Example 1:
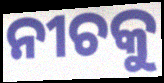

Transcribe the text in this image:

ନୀଚକୁ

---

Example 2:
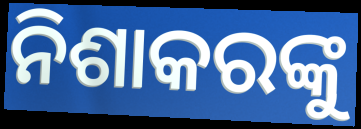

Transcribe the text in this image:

ନିଶାକରଙ୍କୁ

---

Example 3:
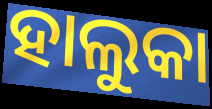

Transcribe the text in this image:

ହାଲୁକା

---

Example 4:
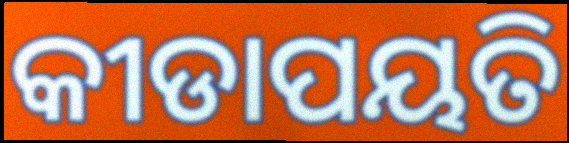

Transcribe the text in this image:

କୀଡାପୟତି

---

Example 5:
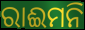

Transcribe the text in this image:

ରାଈମନି